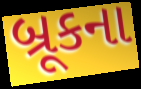
બ્રૂકના